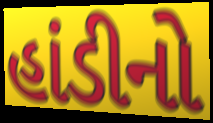
હાંડીનો